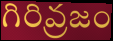
గిరివ్రజం